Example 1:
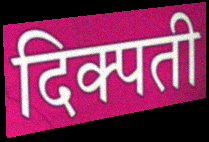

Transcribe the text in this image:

दिक्पती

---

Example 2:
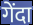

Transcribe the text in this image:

गेंदा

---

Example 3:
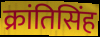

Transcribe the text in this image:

क्रांतिसिंह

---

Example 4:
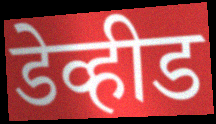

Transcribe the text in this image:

डेव्हीड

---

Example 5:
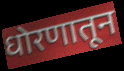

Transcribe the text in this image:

धोरणातून